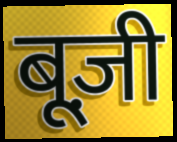
बूज़ी